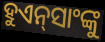
ହୁଏନ୍‌ସାଂଙ୍କୁ